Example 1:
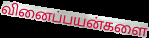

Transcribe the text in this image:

வினைப்பயன்களை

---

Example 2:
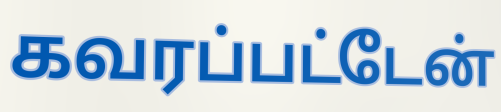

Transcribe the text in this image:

கவரப்பட்டேன்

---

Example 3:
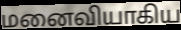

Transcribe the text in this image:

மனைவியாகிய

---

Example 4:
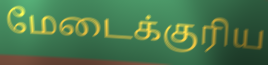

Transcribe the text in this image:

மேடைக்குரிய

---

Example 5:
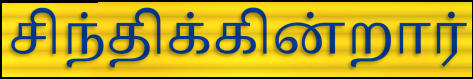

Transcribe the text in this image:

சிந்திக்கின்றார்